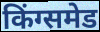
किंग्समेड